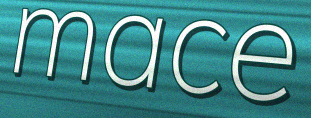
mace